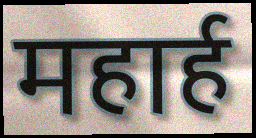
महार्ह